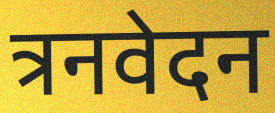
त्रनवेदन